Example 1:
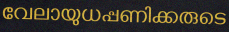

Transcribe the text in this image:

വേലായുധപ്പണിക്കരുടെ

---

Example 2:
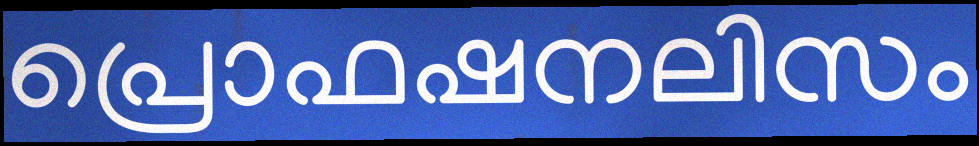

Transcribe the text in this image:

പ്രൊഫഷനലിസം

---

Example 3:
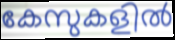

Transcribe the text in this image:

കേസുകളിൽ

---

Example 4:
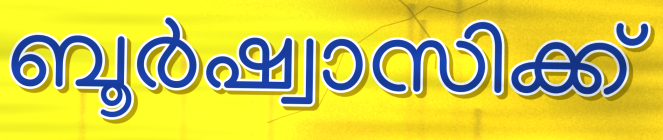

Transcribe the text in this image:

ബൂർഷ്വാസിക്ക്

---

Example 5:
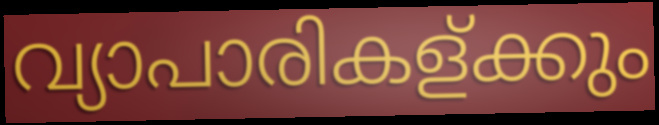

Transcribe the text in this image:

വ്യാപാരികള്ക്കും